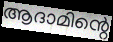
ആദാമിന്റെ